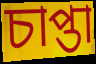
চাপ্তা